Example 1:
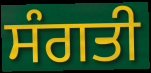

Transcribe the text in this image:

ਸੰਗਤੀ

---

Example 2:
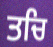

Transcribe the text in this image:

ਤਚਿ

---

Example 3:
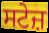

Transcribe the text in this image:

ਸਟੇਜ਼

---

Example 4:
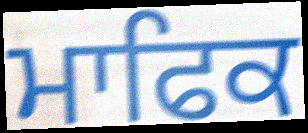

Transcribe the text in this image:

ਮਾਫਿਕ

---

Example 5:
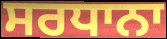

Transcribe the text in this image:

ਸਰਧਾਨਾ